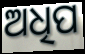
ଅଧିପ